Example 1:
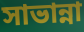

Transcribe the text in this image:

সাভান্না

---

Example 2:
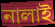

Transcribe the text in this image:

নালাই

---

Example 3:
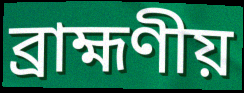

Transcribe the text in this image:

ব্রাহ্মণীয়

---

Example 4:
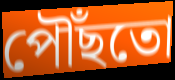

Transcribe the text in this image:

পৌঁছতো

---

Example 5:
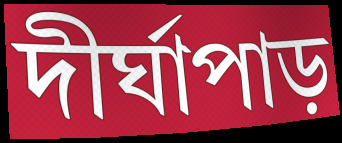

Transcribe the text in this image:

দীর্ঘাপাড়